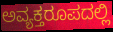
ಅವ್ಯಕ್ತರೂಪದಲ್ಲಿ